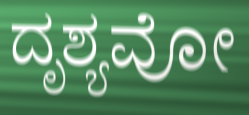
ದೃಶ್ಯವೋ